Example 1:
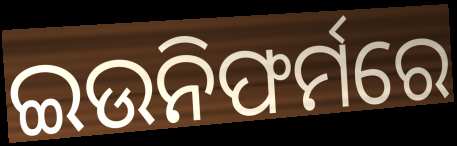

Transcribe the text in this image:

ଇଉନିଫର୍ମରେ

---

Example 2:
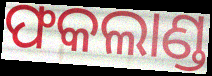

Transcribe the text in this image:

ଫକଲାଣ୍ଡ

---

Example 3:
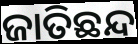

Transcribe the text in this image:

ଜାତିଛନ୍ଦ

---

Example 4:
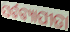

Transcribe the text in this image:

ସର୍ବବ୍ୟାପୀତା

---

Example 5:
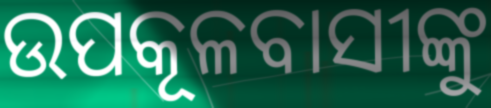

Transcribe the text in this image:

ଉପକୂଳବାସୀଙ୍କୁ